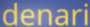
denari